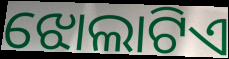
ଝୋଲାଟିଏ